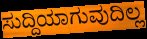
ಸುದ್ದಿಯಾಗುವುದಿಲ್ಲ